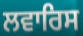
ਲਵਾਰਿਸ